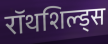
रॉथशिल्ड्स